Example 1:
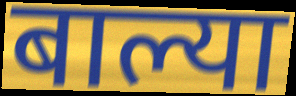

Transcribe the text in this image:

बाल्या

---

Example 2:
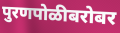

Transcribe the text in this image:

पुरणपोळीबरोबर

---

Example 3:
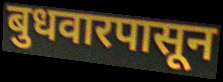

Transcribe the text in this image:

बुधवारपासून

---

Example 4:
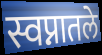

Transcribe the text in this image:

स्वप्नातले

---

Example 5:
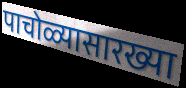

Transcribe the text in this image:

पाचोळ्यासारख्या